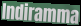
Indiramma